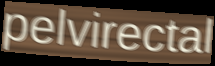
pelvirectal